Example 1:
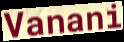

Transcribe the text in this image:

Vanani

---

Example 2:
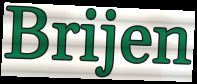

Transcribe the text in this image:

Brijen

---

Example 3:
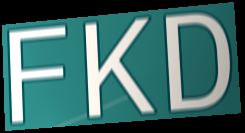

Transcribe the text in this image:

FKD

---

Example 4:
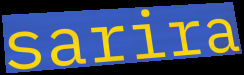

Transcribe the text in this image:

sarira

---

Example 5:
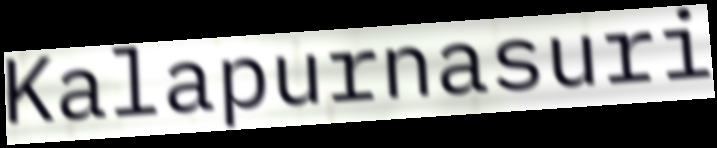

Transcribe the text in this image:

Kalapurnasuri